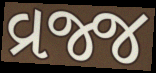
વ્રજ્જ